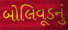
બોલિવૂડનું